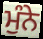
ਮੁੰਨੇ